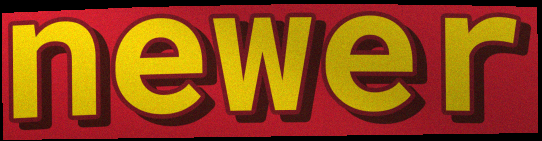
newer